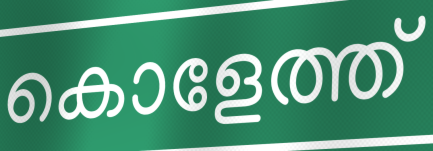
കൊളേത്ത്